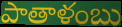
పాతాళంబు